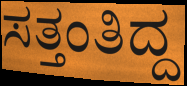
ಸತ್ತಂತಿದ್ದ